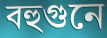
বহুগুনে